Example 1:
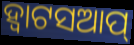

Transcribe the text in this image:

ହ୍ବାଟସଆପ୍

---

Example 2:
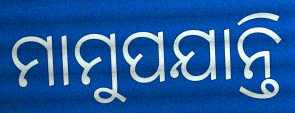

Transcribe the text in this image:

ମାମୁପଯାନ୍ତି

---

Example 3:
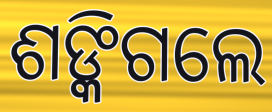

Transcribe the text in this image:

ଶଙ୍କିଗଲେ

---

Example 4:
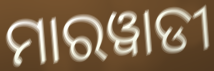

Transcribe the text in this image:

ମାରୱାଡୀ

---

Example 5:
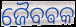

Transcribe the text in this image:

ଜୈବଵକ